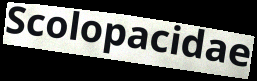
Scolopacidae